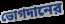
ভোগদানের